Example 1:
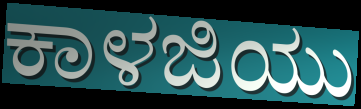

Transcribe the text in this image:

ಕಾಳಜಿಯು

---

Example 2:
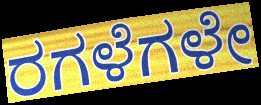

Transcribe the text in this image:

ರಗಳೆಗಳೇ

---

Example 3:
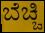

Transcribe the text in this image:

ಬೆಚ್ಚಿ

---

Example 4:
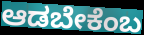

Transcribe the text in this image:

ಆಡಬೇಕೆಂಬ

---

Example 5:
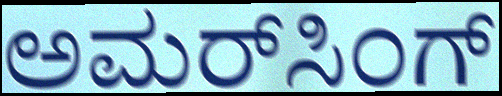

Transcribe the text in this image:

ಅಮರ್‌ಸಿಂಗ್